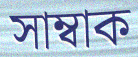
সাম্বাক